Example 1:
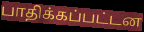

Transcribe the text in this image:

பாதிக்கப்பட்டன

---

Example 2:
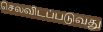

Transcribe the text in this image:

செலவிடப்படுவது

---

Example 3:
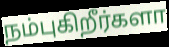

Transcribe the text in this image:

நம்புகிறீர்களா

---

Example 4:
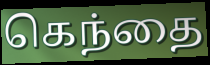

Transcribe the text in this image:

கெந்தை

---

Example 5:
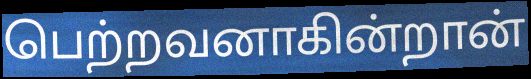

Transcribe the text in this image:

பெற்றவனாகின்றான்